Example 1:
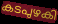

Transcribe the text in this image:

കടപുഴകി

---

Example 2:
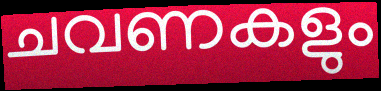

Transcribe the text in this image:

ചവണകളും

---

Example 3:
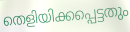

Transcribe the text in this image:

തെളിയിക്കപ്പെട്ടതും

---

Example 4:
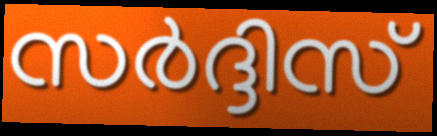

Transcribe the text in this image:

സർദ്ദിസ്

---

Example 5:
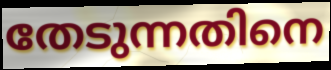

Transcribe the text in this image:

തേടുന്നതിനെ